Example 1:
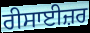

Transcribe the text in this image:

ਰੀਸਾਈਜ਼ਰ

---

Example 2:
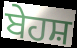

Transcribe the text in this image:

ਬੇਹਸ਼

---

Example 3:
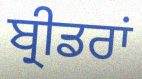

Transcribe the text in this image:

ਬ੍ਰੀਡਰਾਂ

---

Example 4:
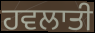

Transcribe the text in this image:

ਹਵਲਾਤੀ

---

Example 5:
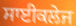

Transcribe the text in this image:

ਸਾਈਕਲੇਜ